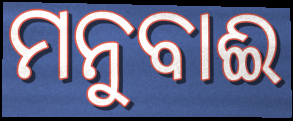
ମନୁବାଈ